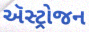
ઍસ્ટ્રોજન